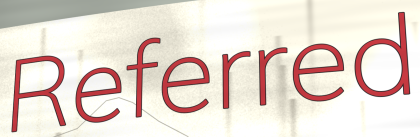
Referred